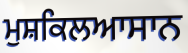
ਮੁਸ਼ਕਿਲਆਸਾਨ